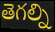
తెగల్ని